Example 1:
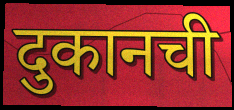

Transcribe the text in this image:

दुकानची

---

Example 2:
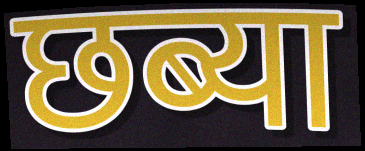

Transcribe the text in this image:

छब्या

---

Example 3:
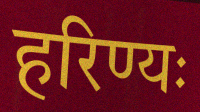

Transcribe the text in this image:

हरिण्यः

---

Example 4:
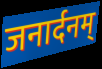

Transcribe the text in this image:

जनार्दनम्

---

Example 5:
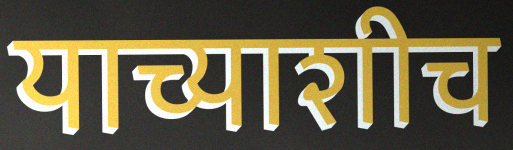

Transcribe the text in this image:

याच्याशीच